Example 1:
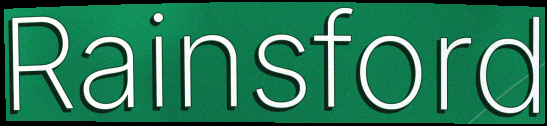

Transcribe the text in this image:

Rainsford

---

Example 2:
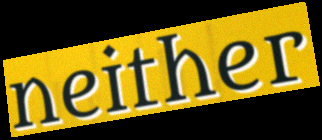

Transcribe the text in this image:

neither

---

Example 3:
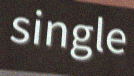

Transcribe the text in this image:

single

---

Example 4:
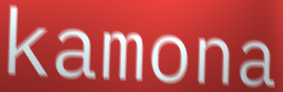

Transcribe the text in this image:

kamona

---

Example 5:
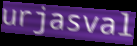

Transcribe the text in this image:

urjasval